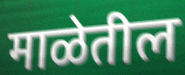
माळेतील